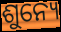
ଶୁନ୍ୟେ